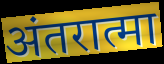
अंतरात्मा